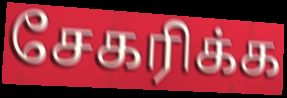
சேகரிக்க